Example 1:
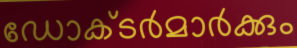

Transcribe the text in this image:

ഡോക്ടർമാർക്കും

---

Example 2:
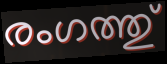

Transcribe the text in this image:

രംഗത്തു്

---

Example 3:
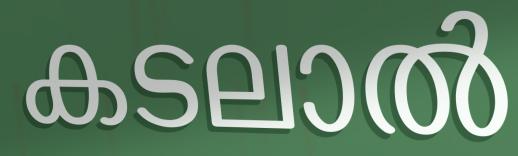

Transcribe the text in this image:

കടലാൽ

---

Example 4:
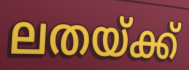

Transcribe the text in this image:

ലതയ്ക്ക്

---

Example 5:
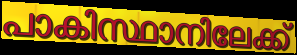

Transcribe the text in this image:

പാകിസ്ഥാനിലേക്ക്